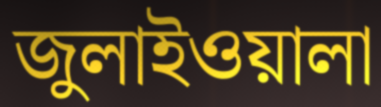
জুলাইওয়ালা